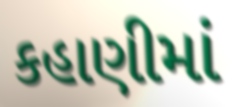
કહાણીમાં